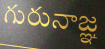
గురునాజ్ఞ